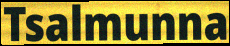
Tsalmunna